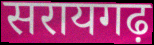
सरायगढ़